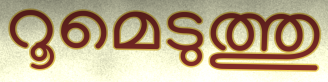
റൂമെടുത്തു